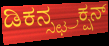
ಡಿಕನ್ಸ್ಟ್ರಕ್ಷನ್